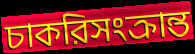
চাকরিসংক্রান্ত